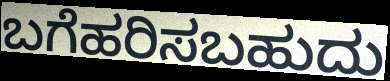
ಬಗೆಹರಿಸಬಹುದು